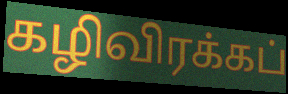
கழிவிரக்கப்